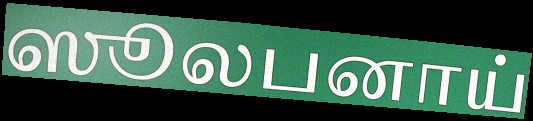
ஸூலபனாய்